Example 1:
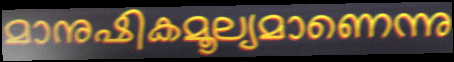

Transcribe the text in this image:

മാനുഷികമൂല്യമാണെന്നു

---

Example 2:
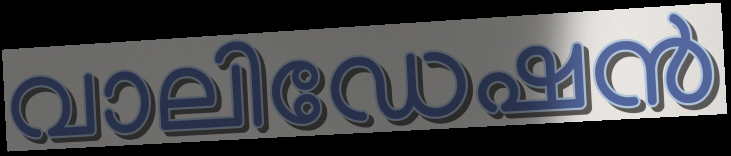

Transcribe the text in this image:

വാലിഡേഷൻ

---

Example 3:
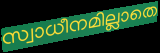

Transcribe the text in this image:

സ്വാധീനമില്ലാതെ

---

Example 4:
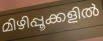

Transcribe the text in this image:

മിഴിപ്പൂക്കളിൽ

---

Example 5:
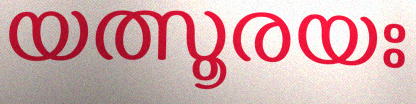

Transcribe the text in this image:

യത്സൂരയഃ